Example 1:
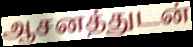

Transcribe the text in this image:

ஆசனத்துடன்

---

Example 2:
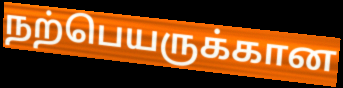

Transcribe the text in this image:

நற்பெயருக்கான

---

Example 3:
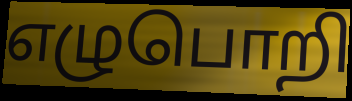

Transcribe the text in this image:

எழுபொறி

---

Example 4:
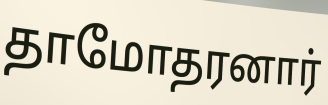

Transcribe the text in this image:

தாமோதரனார்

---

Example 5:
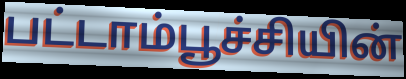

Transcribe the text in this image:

பட்டாம்பூச்சியின்